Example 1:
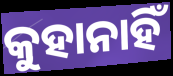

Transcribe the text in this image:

କୁହାନାହିଁ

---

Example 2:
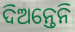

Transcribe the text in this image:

ଦିଅନ୍ତେନି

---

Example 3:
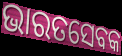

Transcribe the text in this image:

ଭାରତସେବକ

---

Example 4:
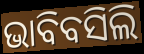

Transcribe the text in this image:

ଭାବିବସିଲି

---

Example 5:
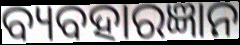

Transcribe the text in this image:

ବ୍ୟବହାରଜ୍ଞାନ